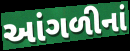
આંગળીનાં